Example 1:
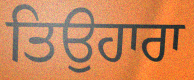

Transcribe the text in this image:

ਤਿਉਹਾਰਾ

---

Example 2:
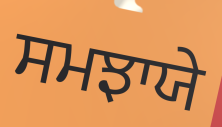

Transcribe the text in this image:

ਸਮਝਾਯੇ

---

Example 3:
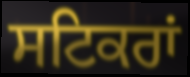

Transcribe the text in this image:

ਸਟਿਕਰਾਂ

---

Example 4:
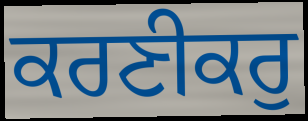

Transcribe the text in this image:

ਕਰਣੀਕਰੁ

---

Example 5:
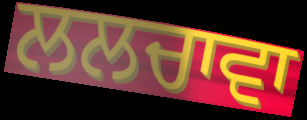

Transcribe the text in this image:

ਲਲਚਾਵਾ